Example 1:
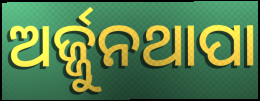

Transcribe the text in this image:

ଅର୍ଜ୍ଜୁନଥାପା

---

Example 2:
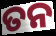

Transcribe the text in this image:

ତନ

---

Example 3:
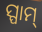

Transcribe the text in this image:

ସ୍ପାମ୍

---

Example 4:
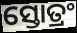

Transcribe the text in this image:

ସ୍ତୋତ୍ରଂ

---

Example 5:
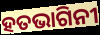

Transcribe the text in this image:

ହତଭାଗିନୀ